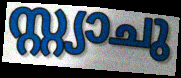
സ്റ്റ്യാചു